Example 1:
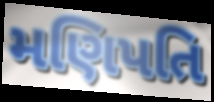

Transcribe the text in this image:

મણિપતિ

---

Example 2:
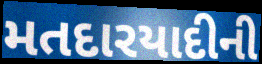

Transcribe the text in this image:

મતદારયાદીની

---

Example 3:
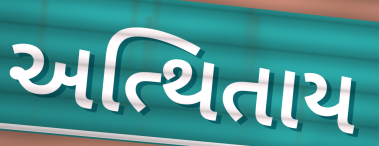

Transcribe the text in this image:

અત્થિતાય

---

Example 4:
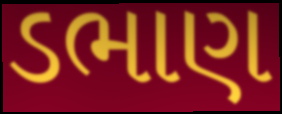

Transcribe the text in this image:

ડભાણ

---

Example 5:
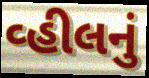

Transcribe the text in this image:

વ્હીલનું